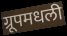
ग्रूपमधली